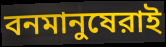
বনমানুষেরাই